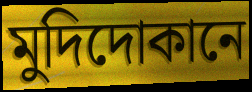
মুদিদোকানে